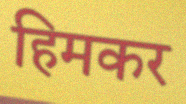
हिमकर